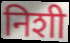
निशी